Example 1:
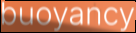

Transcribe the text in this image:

buoyancy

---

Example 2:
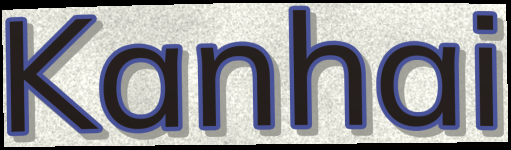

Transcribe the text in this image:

Kanhai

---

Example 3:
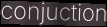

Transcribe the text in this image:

conjuction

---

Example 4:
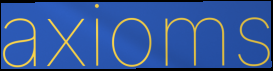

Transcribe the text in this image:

axioms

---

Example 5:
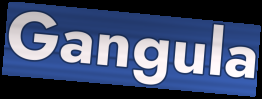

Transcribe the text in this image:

Gangula